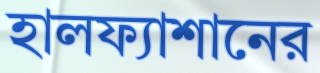
হালফ্যাশানের